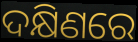
ଦକ୍ଷିଣରେ